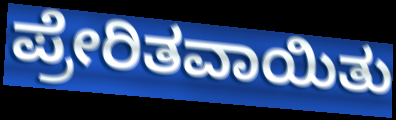
ಪ್ರೇರಿತವಾಯಿತು